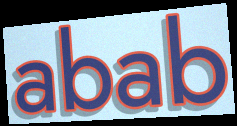
abab